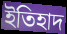
ইতিহাদ